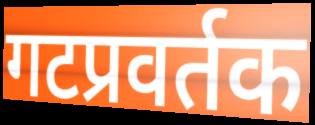
गटप्रवर्तक